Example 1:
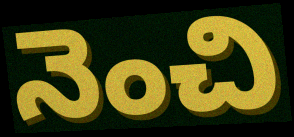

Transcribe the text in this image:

నెంచి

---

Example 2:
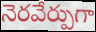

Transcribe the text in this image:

నెరవేర్పుగా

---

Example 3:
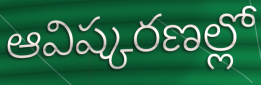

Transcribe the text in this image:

ఆవిష్కరణల్లో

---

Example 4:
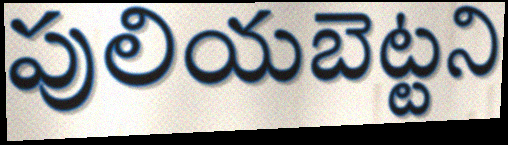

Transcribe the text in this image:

పులియబెట్టని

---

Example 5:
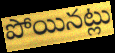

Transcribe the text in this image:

పోయినట్లు